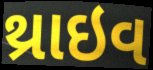
થ્રાઇવ